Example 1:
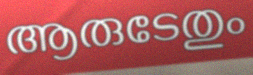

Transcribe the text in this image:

ആരുടേതും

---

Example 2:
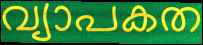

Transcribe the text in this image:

വ്യാപകത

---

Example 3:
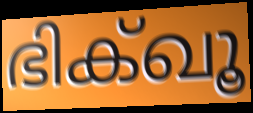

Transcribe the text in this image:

ഭിക്ഖൂ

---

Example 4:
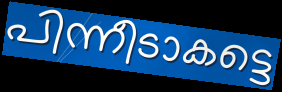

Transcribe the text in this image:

പിന്നീടാകട്ടെ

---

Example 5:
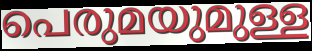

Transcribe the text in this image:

പെരുമയുമുള്ള